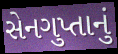
સેનગુપ્‍તાનું